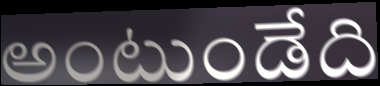
అంటుండేది